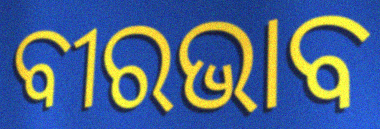
ବୀରଭାବ